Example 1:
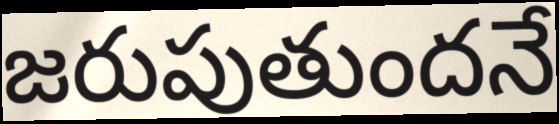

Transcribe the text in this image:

జరుపుతుందనే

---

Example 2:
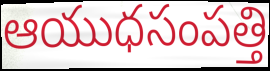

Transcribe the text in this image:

ఆయుధసంపత్తి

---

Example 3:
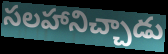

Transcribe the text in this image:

సలహానిచ్చాడు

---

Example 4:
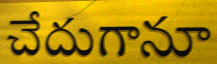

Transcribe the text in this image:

చేదుగానూ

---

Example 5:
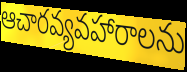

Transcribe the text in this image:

ఆచారవ్యవహారాలను